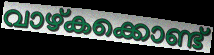
വാഴ്കക്കൊണ്ട്